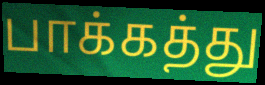
பாக்கத்து